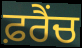
ਫ਼ਰੈਂਚ